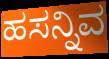
ಹಸನ್ನಿವ